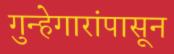
गुन्हेगारांपासून